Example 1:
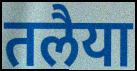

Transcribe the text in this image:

तलैया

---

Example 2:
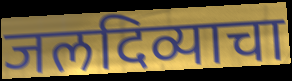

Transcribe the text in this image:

जलदिव्याचा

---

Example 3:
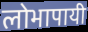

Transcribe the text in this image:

लोभापायी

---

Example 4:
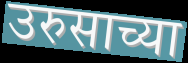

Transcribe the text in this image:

उरुसाच्या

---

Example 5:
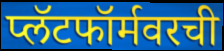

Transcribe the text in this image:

प्लॅटफॉर्मवरची